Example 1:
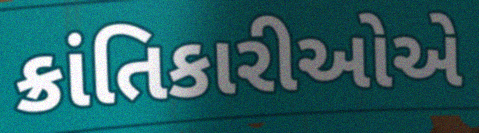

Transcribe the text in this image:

ક્રાંતિકારીઓએ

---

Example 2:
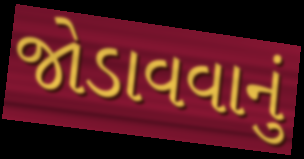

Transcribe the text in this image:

જોડાવવાનું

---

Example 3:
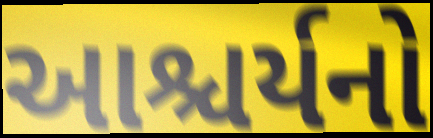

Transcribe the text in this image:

આશ્ચર્યનો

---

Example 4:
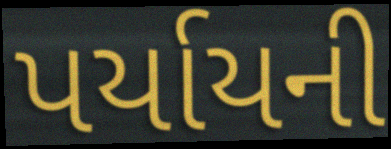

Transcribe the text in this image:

પર્યાયની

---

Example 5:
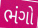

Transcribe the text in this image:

ભંગો